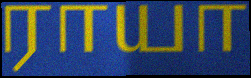
ராயா